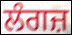
ਲੰਗਜ਼